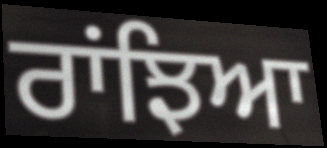
ਰਾਂਝਿਆ